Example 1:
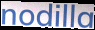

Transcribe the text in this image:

nodilla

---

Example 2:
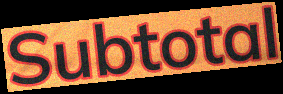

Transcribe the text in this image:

Subtotal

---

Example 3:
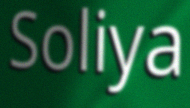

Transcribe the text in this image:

Soliya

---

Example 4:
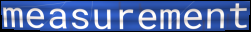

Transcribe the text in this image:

measurement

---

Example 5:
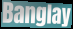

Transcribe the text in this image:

Banglay